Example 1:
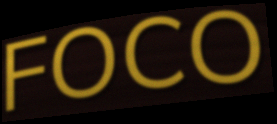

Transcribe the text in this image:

FOCO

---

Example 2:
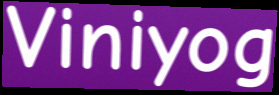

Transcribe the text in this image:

Viniyog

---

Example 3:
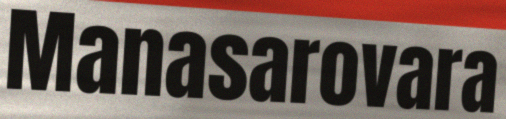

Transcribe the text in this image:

Manasarovara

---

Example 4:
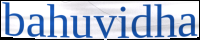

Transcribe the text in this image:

bahuvidha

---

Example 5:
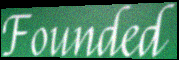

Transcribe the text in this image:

Founded